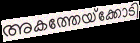
അകത്തേയ്‌ക്കോടി